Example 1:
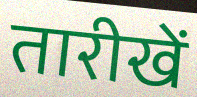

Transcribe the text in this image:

तारीखें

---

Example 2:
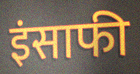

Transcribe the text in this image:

इंसाफी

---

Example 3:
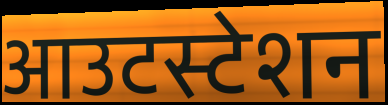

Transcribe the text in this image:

आउटस्टेशन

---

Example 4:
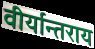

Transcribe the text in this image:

वीर्यान्तराय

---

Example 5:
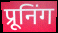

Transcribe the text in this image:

प्रूनिंग